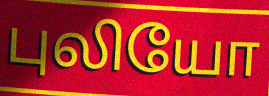
புலியோ